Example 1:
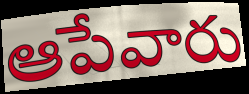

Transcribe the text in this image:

ఆపేవారు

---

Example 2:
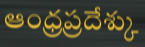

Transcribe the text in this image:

ఆంధ్రప్రదేశ్కు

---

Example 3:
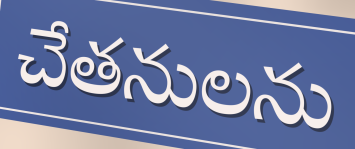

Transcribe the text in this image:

చేతనులను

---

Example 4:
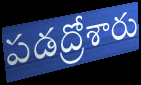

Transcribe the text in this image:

పడద్రోశారు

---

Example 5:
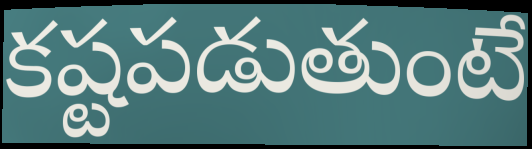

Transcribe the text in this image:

కష్టపడుతుంటే